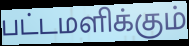
பட்டமளிக்கும்